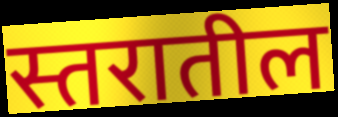
स्तरातील